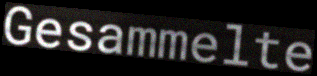
Gesammelte